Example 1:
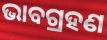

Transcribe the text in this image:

ଭାବଗ୍ରହଣ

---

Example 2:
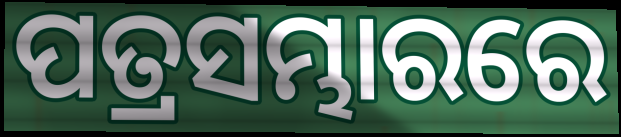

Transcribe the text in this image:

ପତ୍ରସମ୍ଭାରରେ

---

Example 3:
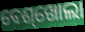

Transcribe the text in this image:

ବେଶ୍‌ଖୋଲା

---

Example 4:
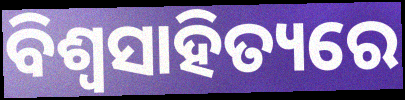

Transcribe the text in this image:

ବିଶ୍ବସାହିତ୍ୟରେ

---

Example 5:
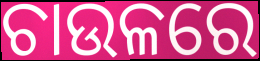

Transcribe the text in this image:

ଚାଉଳରେ